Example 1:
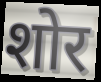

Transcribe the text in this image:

शोर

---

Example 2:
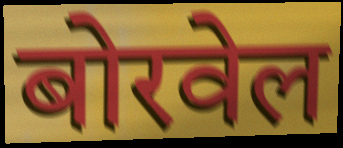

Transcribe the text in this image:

बोरवेल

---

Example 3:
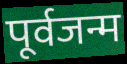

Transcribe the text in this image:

पूर्वजन्‍म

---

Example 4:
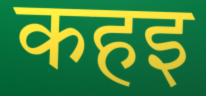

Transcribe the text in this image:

कहइ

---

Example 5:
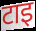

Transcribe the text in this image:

टाइ